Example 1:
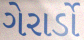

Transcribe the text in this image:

ગેરાર્ડો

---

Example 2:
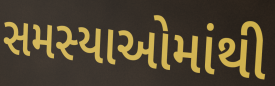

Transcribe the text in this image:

સમસ્યાઓમાંથી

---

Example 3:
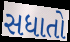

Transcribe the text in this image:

સધાતો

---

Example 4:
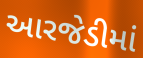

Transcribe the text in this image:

આરજેડીમાં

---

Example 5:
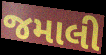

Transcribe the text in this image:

જમાલી